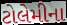
ટોલેમીના